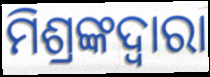
ମିଶ୍ରଙ୍କଦ୍ୱାରା